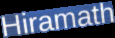
Hiramath